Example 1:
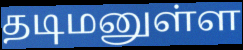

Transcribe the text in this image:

தடிமனுள்ள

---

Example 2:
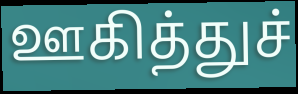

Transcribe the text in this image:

ஊகித்துச்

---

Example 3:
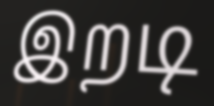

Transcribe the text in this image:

இறடி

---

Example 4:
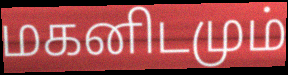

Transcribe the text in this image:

மகனிடமும்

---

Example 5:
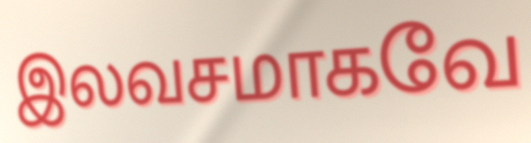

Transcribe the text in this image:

இலவசமாகவே